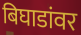
बिघाडांवर